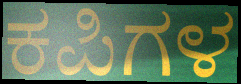
ಕಪಿಗಳ